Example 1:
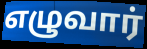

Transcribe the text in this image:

எழுவார்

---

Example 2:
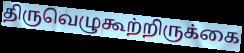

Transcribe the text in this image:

திருவெழுகூற்றிருக்கை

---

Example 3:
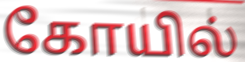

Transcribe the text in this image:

கோயில்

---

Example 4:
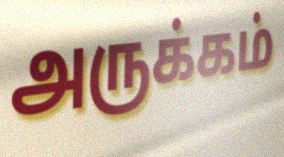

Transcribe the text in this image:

அருக்கம்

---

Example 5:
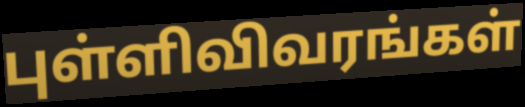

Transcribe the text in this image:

புள்ளிவிவரங்கள்